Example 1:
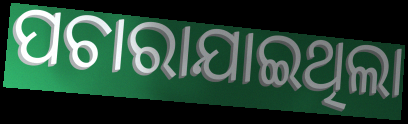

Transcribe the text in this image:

ପଚାରାଯାଇଥିଲା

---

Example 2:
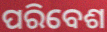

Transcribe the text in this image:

ପରିବେଶ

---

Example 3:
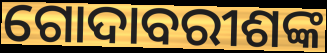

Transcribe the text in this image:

ଗୋଦାବରୀଶଙ୍କ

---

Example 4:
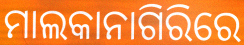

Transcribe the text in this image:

ମାଲକାନାଗିରିରେ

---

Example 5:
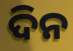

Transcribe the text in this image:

ଦିନ